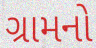
ગ્રામનો